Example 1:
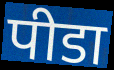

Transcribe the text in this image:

पीडा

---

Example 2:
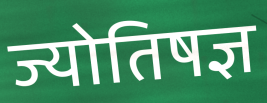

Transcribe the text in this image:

ज्योतिषज्ञ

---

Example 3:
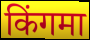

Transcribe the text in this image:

किंगमा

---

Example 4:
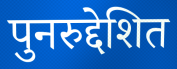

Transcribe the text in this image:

पुनरुद्देशित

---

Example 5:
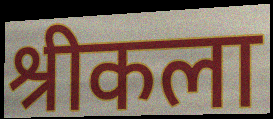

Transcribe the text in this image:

श्रीकला